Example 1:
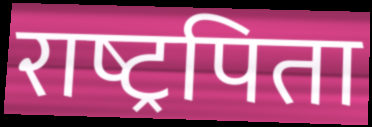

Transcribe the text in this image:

राष्ट्रपिता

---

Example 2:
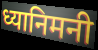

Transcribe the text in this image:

ध्यानिमनी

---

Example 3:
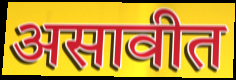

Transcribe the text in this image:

असावीत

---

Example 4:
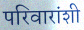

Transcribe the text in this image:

परिवारांशी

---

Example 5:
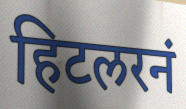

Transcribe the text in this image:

हिटलरनं